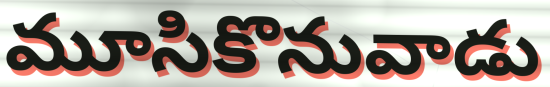
మూసికొనువాడు